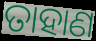
ତାହାଣ